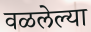
वळलेल्या